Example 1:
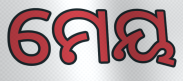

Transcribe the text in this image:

ମେୟ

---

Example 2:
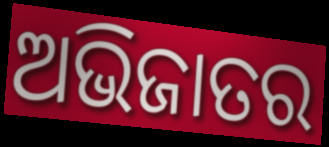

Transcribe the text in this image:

ଅଭିଜାତର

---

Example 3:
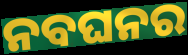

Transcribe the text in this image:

ନବଘନର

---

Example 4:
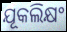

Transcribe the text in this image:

ଯୂକଲିକ୍ଷଂ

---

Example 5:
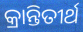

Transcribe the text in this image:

କ୍ରାନ୍ତିତୀର୍ଥ